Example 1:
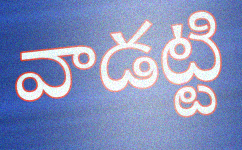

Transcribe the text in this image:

వాడట్టి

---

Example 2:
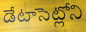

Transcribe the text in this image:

డేటాసెట్లోని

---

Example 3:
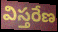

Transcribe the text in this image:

విస్తరేణ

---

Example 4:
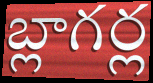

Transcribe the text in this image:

బ్లాగర్ల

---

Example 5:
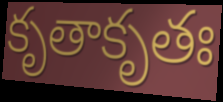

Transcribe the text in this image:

కృతాకృతః